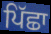
ਪਿੱਛਾ